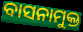
ବାସନାମୁକ୍ତ